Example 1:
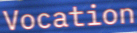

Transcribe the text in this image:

Vocation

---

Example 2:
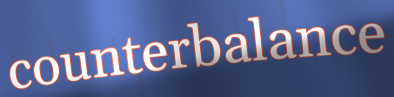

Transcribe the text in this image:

counterbalance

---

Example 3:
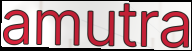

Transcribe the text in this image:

amutra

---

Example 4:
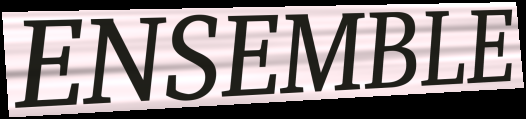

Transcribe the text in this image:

ENSEMBLE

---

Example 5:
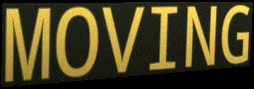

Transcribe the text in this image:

MOVING